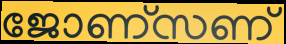
ജോണ്സണ്